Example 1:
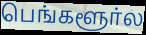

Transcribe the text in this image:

பெங்களூர்ல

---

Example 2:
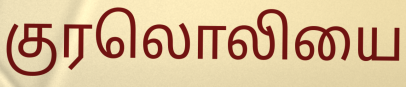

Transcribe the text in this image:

குரலொலியை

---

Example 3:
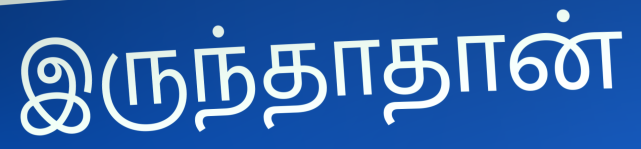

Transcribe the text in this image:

இருந்தாதான்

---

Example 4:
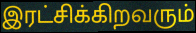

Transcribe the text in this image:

இரட்சிக்கிறவரும்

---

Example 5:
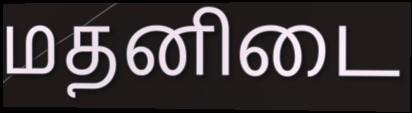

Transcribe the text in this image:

மதனிடை